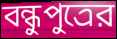
বন্ধুপুত্রের